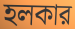
হলকার